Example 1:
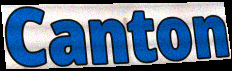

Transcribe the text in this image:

Canton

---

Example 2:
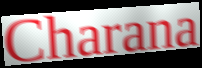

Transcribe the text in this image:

Charana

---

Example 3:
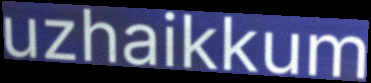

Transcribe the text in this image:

uzhaikkum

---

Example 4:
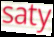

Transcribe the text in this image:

saty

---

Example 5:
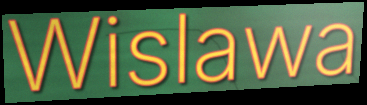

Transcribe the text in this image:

Wislawa